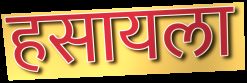
हसायला